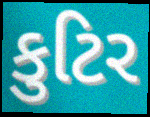
કુટિર